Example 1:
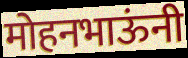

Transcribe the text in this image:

मोहनभाऊंनी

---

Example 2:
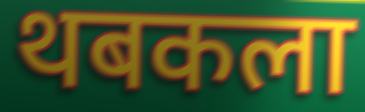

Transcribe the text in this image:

थबकला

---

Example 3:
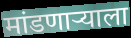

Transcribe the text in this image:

मांडणाऱ्याला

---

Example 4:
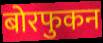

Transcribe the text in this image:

बोरफुकन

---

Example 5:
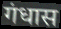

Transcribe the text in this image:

गंधास